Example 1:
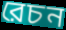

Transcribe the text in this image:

রেচন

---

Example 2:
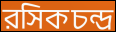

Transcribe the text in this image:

রসিকচন্দ্র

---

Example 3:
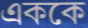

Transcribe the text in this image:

এককে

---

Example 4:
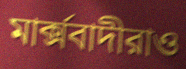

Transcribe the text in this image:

মার্ক্সবাদীরাও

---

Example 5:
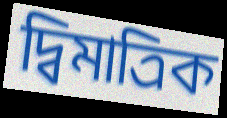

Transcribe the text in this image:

দ্বিমাত্রিক